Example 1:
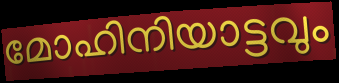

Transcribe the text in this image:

മോഹിനിയാട്ടവും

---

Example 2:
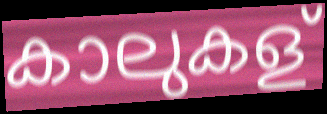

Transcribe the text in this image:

കാലുകള്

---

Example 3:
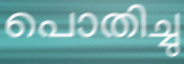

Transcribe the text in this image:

പൊതിച്ചു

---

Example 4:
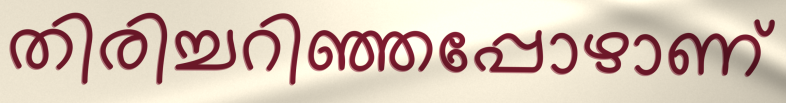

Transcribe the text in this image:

തിരിച്ചറിഞ്ഞപ്പോഴാണ്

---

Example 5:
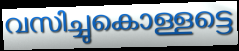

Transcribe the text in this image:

വസിച്ചുകൊള്ളട്ടെ